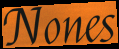
Nones